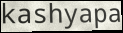
kashyapa